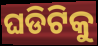
ଘଡିଟିକୁ